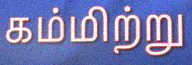
கம்மிற்று